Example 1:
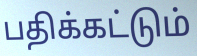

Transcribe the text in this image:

பதிக்கட்டும்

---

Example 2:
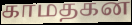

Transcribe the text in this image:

காமதகன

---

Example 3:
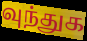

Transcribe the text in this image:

வுந்துக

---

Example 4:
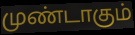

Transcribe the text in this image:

முண்டாகும்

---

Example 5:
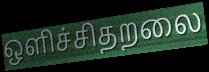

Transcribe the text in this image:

ஒளிச்சிதறலை